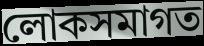
লোকসমাগত